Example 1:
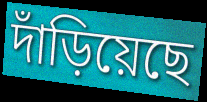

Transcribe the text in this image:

দাঁড়িয়েছে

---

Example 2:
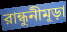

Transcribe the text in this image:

রান্ধুনীমূড়া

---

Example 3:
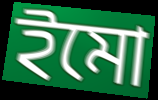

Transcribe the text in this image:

ইমো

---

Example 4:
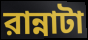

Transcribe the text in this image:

রান্নাটা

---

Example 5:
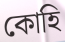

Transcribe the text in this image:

কোহি